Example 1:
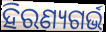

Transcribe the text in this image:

ହିରଣ୍ୟଗର୍ଭ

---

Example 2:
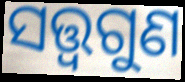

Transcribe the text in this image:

ସତ୍ତ୍ୱଗୁଣ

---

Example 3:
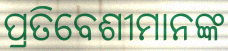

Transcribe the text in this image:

ପ୍ରତିବେଶୀମାନଙ୍କ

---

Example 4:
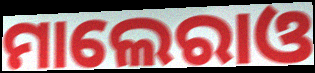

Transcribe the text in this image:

ମାଲେରାଓ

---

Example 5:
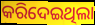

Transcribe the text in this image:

କରିଦେଇଥିଲା